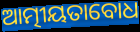
ଆତ୍ମୀୟତାବୋଧ